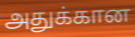
அதுக்கான